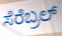
ಸೆರೆಬ್ರಲ್